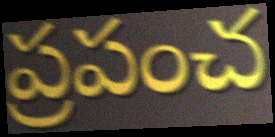
ప్రపంచ